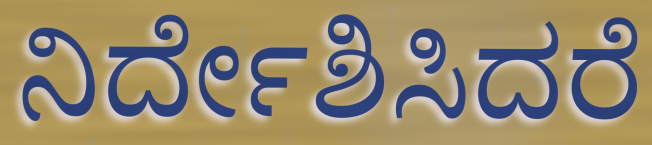
ನಿರ್ದೇಶಿಸಿದರೆ